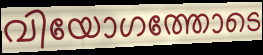
വിയോഗത്തോടെ